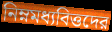
নিম্নমধ্যবিত্তদের